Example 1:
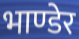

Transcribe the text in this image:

भाण्‍डेर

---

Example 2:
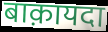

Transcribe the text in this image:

बाक़ायदा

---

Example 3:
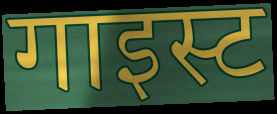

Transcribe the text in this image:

गाइस्ट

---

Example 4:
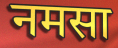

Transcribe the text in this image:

नमसा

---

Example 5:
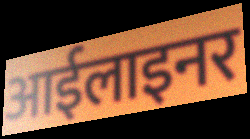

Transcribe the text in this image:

आईलाइनर